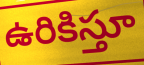
ఉరికిస్తూ